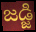
జడ్జి